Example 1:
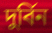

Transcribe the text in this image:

দুর্বিন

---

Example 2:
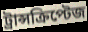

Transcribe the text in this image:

ট্রান্সক্রিপ্টেজ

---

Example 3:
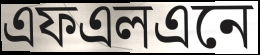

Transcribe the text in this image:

এফএলএনে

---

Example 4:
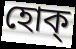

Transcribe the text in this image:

হোক্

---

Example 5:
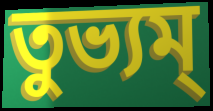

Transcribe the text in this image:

তুভ্যম্